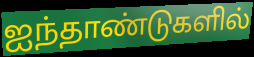
ஐந்தாண்டுகளில்